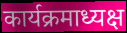
कार्यक्रमाध्यक्ष